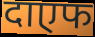
दाएफ